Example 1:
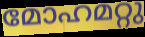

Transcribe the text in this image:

മോഹമറ്റു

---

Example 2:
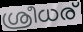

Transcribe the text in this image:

ശ്രീധര്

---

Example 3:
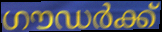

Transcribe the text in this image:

ഗൗഡർക്ക്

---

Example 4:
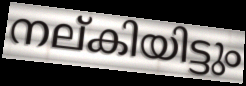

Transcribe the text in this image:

നല്കിയിട്ടും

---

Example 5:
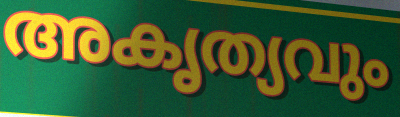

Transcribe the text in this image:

അകൃത്യവും